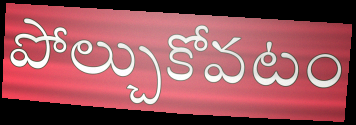
పోల్చుకోవటం